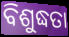
ବିଶୁଦ୍ଧତା